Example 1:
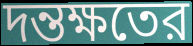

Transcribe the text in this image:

দন্তক্ষতের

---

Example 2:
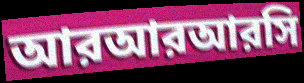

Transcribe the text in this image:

আরআরআরসি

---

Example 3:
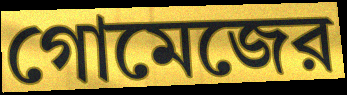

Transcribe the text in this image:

গোমেজের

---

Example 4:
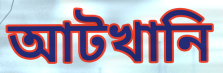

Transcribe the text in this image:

আটখানি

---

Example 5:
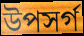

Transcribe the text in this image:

উপসর্গ